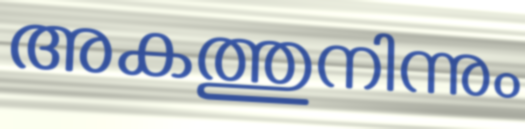
അകത്തുനിന്നും